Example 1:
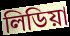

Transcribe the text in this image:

লিডিয়া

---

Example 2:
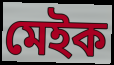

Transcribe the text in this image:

মেইক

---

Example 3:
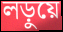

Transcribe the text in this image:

লড়ুয়ে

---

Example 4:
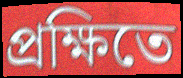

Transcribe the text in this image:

প্রক্ষিতে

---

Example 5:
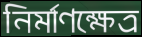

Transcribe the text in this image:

নির্মাণক্ষেত্র